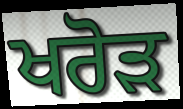
ਖਰੋੜ